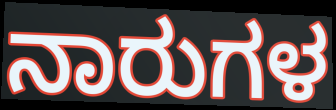
ನಾರುಗಳ